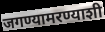
जगण्यामरण्याशी